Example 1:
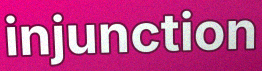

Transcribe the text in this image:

injunction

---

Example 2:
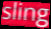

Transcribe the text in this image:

sling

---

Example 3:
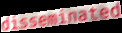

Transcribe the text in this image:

disseminated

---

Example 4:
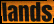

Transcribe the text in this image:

lands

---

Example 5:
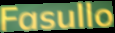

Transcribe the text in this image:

Fasullo